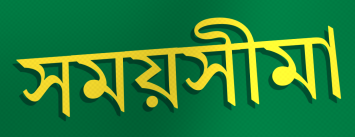
সময়সীমা